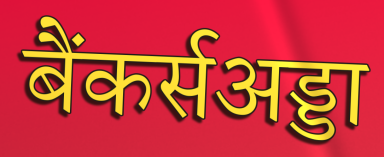
बैंकर्सअड्डा